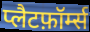
प्लैटफ़ॉर्म्स